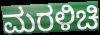
ಮರಳಿಚಿ